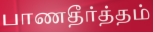
பாணதீர்த்தம்